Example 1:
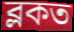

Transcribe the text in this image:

ব্লকত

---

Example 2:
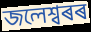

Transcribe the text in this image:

জলেশ্বৰৰ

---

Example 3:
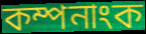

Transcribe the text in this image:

কম্পনাংক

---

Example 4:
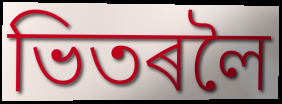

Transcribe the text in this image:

ভিতৰলৈ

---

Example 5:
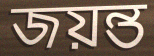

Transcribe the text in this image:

জয়ন্ত